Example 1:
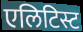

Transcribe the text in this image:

एलिटिस्ट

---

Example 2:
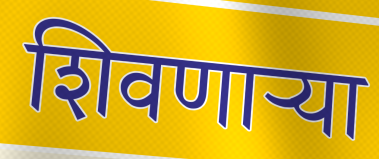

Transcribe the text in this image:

शिवणाऱ्या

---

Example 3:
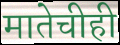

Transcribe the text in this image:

मातेचीही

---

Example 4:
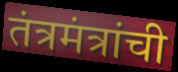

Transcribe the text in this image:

तंत्रमंत्रांची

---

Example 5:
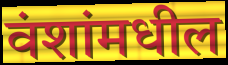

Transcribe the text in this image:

वंशांमधील